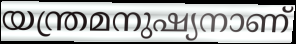
യന്ത്രമനുഷ്യനാണ്